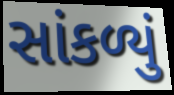
સાંકળ્યું